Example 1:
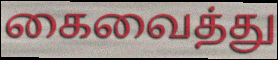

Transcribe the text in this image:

கைவைத்து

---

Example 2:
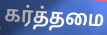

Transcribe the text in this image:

கர்த்தமை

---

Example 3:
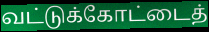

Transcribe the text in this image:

வட்டுக்கோட்டைத்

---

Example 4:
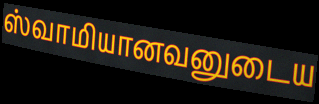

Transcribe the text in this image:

ஸ்வாமியானவனுடைய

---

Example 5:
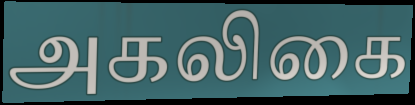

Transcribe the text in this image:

அகலிகை